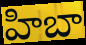
హిబా